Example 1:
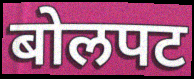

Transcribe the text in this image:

बोलपट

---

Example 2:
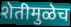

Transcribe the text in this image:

शेतीमुळेच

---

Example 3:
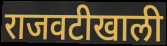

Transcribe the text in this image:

राजवटीखाली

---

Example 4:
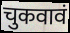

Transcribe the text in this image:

चुकवावं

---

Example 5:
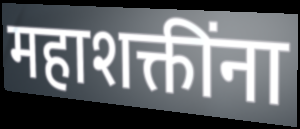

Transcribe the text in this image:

महाशक्तींना